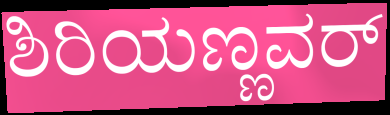
ಶಿರಿಯಣ್ಣವರ್